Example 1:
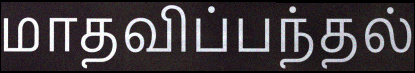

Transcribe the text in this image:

மாதவிப்பந்தல்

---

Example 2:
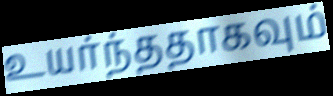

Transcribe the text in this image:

உயர்ந்ததாகவும்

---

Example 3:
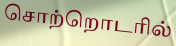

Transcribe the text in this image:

சொற்றொடரில்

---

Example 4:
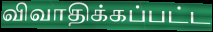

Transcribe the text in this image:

விவாதிக்கப்பட்ட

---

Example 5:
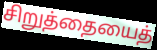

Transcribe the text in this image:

சிறுத்தையைத்